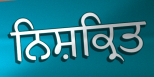
ਨਿਸ਼ਕ੍ਰਿਤ